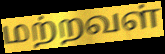
மற்றவள்